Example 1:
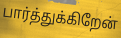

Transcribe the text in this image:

பார்த்துக்கிறேன்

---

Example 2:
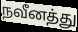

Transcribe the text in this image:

நவீனத்து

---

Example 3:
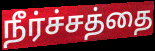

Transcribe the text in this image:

நீர்ச்சத்தை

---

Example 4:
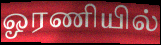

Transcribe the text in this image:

ஓரணியில்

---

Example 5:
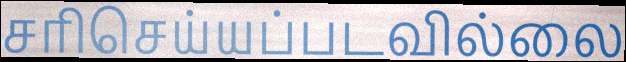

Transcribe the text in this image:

சரிசெய்யப்படவில்லை